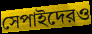
সেপাইদেরও